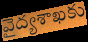
వైద్యశాఖకు